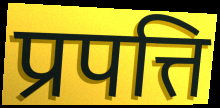
प्रपत्ति